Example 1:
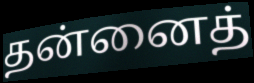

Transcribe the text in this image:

தன்னைத்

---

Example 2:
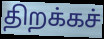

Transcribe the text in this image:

திறக்கச்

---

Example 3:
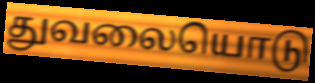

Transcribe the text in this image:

துவலையொடு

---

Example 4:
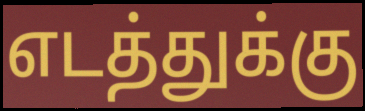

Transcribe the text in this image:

எடத்துக்கு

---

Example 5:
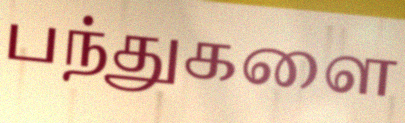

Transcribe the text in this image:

பந்துகளை